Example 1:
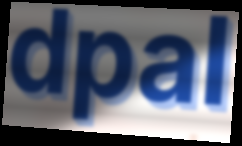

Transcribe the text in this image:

dpal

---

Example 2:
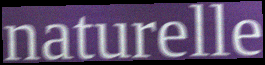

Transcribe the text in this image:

naturelle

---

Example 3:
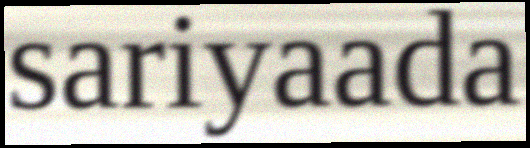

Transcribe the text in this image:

sariyaada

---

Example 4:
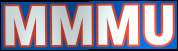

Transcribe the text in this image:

MMMU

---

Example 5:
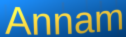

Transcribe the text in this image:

Annam